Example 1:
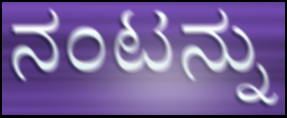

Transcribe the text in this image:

ನಂಟನ್ನು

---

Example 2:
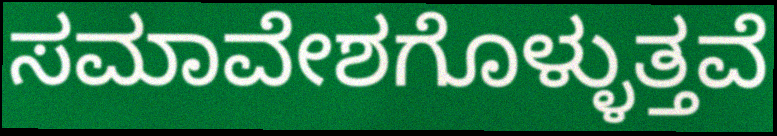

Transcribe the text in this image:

ಸಮಾವೇಶಗೊಳ್ಳುತ್ತವೆ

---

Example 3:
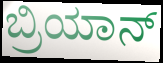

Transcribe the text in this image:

ಬ್ರಿಯಾನ್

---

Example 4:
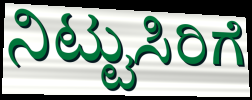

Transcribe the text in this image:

ನಿಟ್ಟುಸಿರಿಗೆ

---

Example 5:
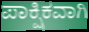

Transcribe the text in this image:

ಪಾಕ್ಷಿಕವಾಗಿ